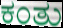
ಕಂತು